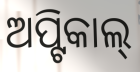
ଅପ୍ଟିକାଲ୍